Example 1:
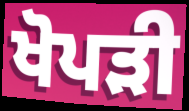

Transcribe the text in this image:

ਖੋਪੜੀ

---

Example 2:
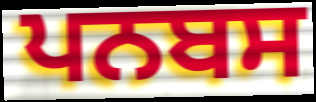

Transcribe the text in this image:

ਪਨਬਸ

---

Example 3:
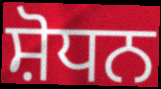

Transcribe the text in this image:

ਸ਼ੋਧਨ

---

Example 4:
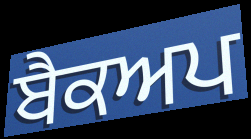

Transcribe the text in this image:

ਬੈਕਅਪ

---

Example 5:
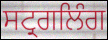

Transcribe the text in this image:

ਸਟ੍ਰਗਲਿੰਗ